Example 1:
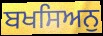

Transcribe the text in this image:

ਬਖਸਿਅਨੁ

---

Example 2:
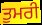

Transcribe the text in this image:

ਤੁਮਰੀ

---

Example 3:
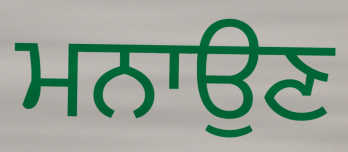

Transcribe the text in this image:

ਮਨਾਉਣ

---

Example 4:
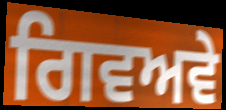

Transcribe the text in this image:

ਗਿਵਅਵੇ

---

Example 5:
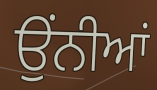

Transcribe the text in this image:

ਉੰਨੀਆਂ